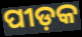
ପୀଡ଼କ